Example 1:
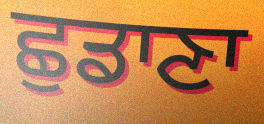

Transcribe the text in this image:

ਛੁਡਾਣਾ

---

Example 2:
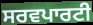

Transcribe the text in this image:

ਸਰਵਪਾਰਟੀ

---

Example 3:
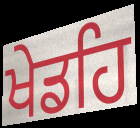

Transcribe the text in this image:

ਖੇਡਹਿ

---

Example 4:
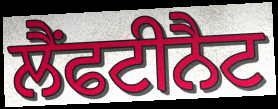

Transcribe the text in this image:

ਲੈਂਫਟੀਨੈਟ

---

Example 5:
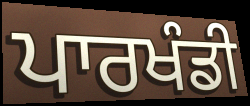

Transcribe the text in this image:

ਪਾਰਖੰਡੀ